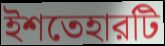
ইশতেহারটি